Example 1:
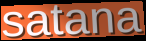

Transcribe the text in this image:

satana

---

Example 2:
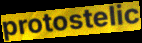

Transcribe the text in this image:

protostelic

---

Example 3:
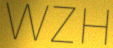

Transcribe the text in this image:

WZH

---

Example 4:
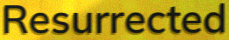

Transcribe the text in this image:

Resurrected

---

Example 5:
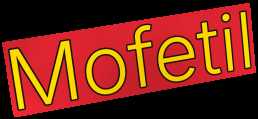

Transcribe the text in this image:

Mofetil